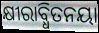
କ୍ଷୀରାବ୍ଧିତନୟା